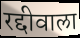
रद्दीवाला